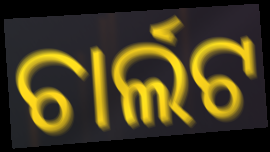
ଚାର୍ଲଟ